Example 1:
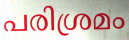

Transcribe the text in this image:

പരിശ്രമം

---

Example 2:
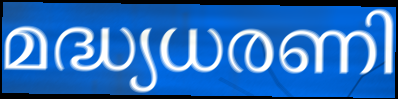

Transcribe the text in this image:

മദ്ധ്യധരണി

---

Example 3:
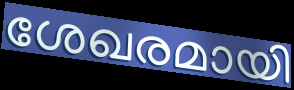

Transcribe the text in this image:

ശേഖരമായി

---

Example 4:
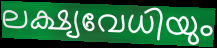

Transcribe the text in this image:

ലക്ഷ്യവേധിയും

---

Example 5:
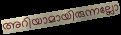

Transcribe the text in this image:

അറിയാമായിരുന്നല്ലോ